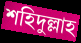
শহিদুল্লাহ